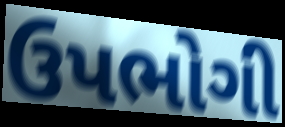
ઉપભોગી